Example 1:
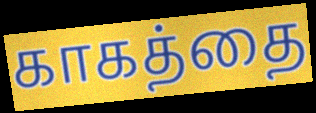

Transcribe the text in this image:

காகத்தை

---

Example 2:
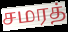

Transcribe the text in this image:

சமரத்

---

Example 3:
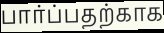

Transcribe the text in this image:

பார்ப்பதற்காக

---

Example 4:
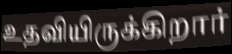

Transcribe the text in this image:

உதவியிருக்கிறார்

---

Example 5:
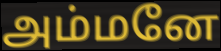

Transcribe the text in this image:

அம்மனே